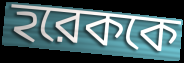
হরেককে